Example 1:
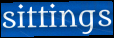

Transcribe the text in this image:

sittings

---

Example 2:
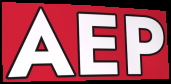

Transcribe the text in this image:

AEP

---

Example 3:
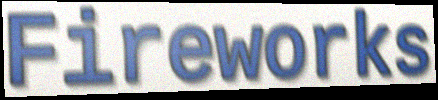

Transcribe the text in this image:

Fireworks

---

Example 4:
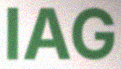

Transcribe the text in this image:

IAG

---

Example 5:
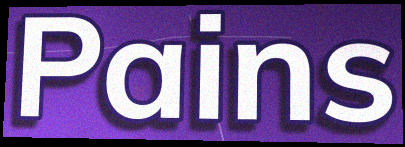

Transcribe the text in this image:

Pains